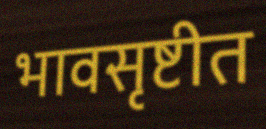
भावसृष्टीत